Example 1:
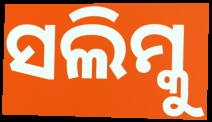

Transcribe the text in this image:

ସଲିମ୍କୁ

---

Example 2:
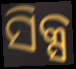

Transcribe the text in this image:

ସିକ୍ସ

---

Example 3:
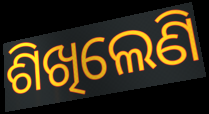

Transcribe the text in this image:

ଶିଖିଲେଣି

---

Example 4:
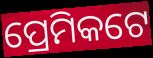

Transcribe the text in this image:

ପ୍ରେମିକଟେ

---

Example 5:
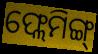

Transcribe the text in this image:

ଫ୍ଲେମିଙ୍ଗ୍